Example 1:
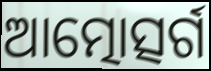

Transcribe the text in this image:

ଆତ୍ମୋତ୍ସର୍ଗ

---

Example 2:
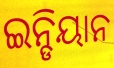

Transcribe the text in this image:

ଇନ୍ଡିୟାନ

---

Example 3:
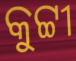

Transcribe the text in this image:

କୁଟ୍ଟୀ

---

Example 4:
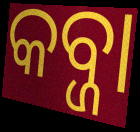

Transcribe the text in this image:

କବ୍ଜା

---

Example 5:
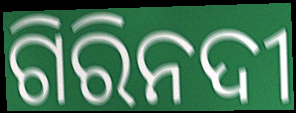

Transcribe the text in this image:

ଗିରିନଦୀ